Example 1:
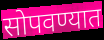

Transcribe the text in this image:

सोपवण्यात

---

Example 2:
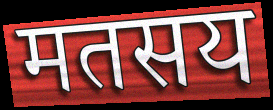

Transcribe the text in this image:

मतसय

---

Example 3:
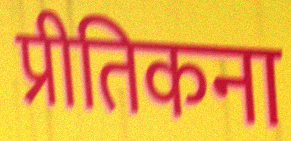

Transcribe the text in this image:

प्रीतिकना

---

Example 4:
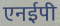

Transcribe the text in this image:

एनईपी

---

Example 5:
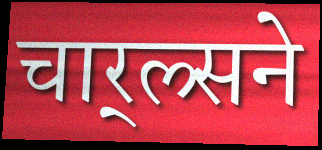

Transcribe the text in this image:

चार्ल्सने